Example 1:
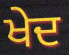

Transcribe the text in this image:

ਖੇਦ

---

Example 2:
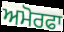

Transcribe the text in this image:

ਅਮੋਰਫਾ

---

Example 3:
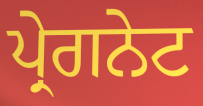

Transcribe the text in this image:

ਪ੍ਰੇਗਨੇਟ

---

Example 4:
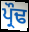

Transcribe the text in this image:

ਪ੍ਰੌਢ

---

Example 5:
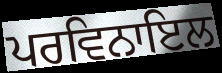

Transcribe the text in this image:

ਪਰਵਿਨਾਇਲ